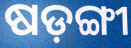
ଷଡ଼ଙ୍ଗୀ